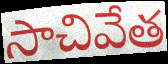
సాచివేత